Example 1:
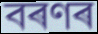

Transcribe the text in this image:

বৰণৰ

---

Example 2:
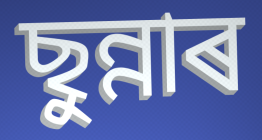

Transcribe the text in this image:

ছুন্নাৰ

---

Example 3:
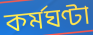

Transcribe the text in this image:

কৰ্মঘণ্টা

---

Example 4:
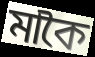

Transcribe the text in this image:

মাকৈ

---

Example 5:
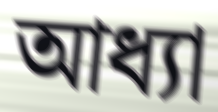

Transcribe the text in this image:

আধ্যা